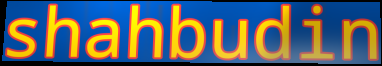
shahbudin